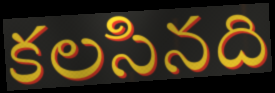
కలసినది